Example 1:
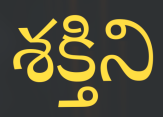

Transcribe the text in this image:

శక్తిని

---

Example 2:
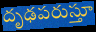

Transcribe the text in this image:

దృఢపరుస్తూ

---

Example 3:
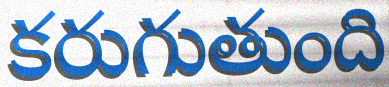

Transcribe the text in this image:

కరుగుతుంది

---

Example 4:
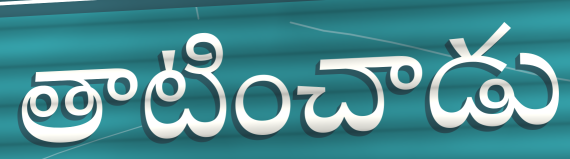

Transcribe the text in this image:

తాటించాడు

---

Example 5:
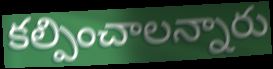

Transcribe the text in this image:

కల్పించాలన్నారు